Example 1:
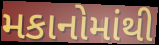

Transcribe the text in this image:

મકાનોમાંથી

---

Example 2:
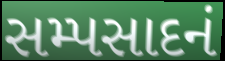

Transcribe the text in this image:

સમ્પસાદનં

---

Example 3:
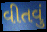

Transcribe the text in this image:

વીતવું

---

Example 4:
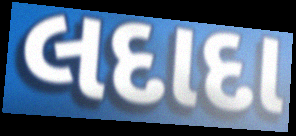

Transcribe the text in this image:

લદાદા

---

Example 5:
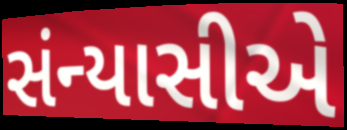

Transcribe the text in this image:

સંન્યાસીએ